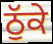
ਠੁੱਕੇ